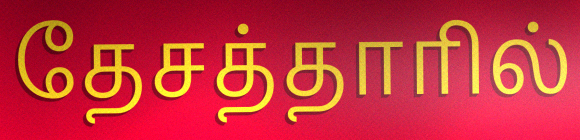
தேசத்தாரில்